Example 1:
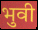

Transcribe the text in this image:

भुवी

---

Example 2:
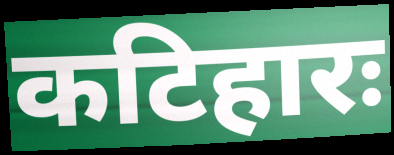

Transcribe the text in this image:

कटिहारः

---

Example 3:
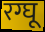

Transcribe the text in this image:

रग्घू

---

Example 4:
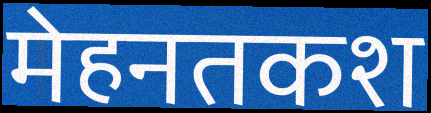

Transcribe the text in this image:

मेहनतकश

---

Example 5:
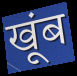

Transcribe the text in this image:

खूंब